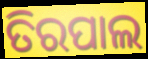
ତିରପାଲ